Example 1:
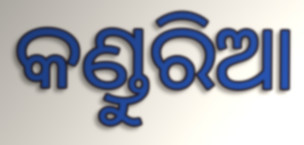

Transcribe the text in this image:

କଣ୍ଡୁରିଆ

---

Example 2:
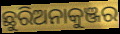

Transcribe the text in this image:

ଛୁରିଅନାକୁଞ୍ଜର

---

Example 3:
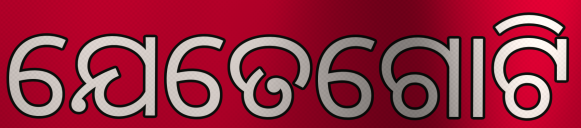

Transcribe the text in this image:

ଯେତେଗୋଟି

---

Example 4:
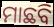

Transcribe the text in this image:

ମାଛବି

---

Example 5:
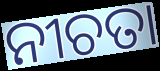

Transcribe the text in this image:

ନୀଚତା